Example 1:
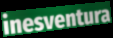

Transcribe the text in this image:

inesventura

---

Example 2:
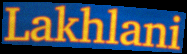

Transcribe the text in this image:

Lakhlani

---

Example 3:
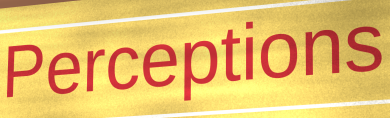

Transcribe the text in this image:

Perceptions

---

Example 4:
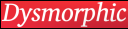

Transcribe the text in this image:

Dysmorphic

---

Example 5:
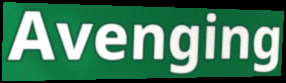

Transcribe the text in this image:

Avenging